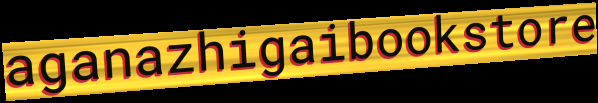
aganazhigaibookstore